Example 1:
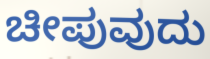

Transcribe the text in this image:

ಚೀಪುವುದು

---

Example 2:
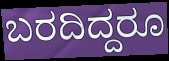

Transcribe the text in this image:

ಬರದಿದ್ದರೂ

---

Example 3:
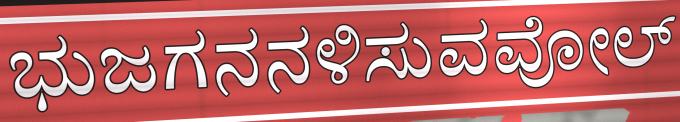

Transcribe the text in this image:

ಭುಜಗನನಳಿಸುವವೋಲ್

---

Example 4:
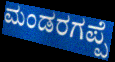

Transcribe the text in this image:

ಮಂಡರಗಪ್ಪೆ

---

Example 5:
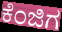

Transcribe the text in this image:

ಕೆಂಜಿಗ